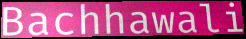
Bachhawali